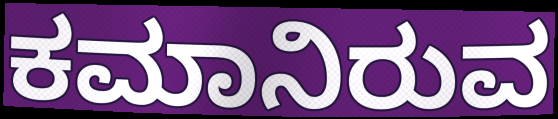
ಕಮಾನಿರುವ